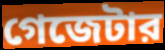
গেজেটার